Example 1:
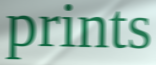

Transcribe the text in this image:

prints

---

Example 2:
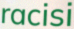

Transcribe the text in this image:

racisi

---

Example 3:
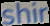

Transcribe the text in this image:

shir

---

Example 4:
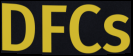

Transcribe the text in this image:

DFCs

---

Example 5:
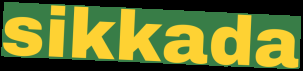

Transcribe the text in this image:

sikkada